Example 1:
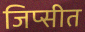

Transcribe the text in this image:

जिप्सीत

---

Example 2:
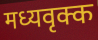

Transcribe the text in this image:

मध्यवृक्क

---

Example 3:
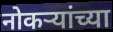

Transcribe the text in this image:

नोकर्‍यांच्या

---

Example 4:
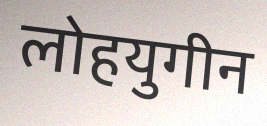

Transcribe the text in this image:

लोहयुगीन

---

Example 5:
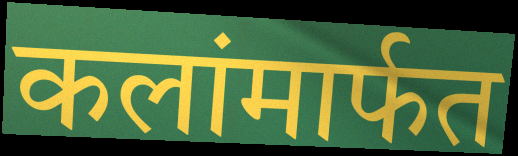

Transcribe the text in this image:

कलांमार्फत